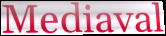
Mediaval